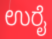
ಉರೈ